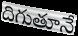
దిగుతూనే